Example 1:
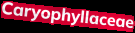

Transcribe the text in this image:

Caryophyllaceae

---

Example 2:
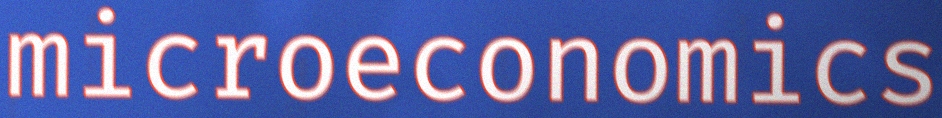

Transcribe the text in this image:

microeconomics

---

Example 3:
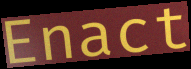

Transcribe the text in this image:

Enact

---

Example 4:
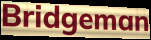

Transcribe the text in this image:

Bridgeman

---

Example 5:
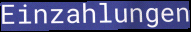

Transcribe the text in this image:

Einzahlungen